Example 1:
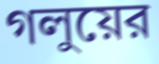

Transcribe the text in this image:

গলুয়ের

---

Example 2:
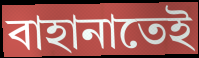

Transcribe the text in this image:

বাহানাতেই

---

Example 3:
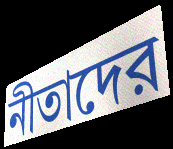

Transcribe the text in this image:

নীতাদের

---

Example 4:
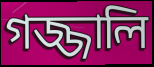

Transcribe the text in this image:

গজ্জালি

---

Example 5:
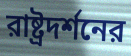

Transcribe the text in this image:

রাষ্ট্রদর্শনের